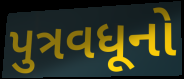
પુત્રવધૂનો